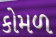
કોમળ